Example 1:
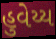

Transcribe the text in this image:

હુવેય્ય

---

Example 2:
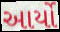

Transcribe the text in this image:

આર્યો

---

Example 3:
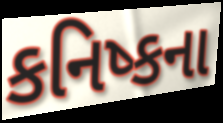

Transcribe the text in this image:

કનિષ્કના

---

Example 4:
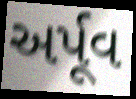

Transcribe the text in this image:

અર્પૂવ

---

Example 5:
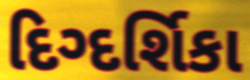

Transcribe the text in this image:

દિગ્દર્શિકા